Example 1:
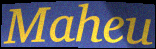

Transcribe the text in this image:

Maheu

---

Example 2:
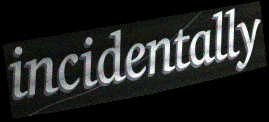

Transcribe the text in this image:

incidentally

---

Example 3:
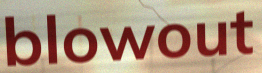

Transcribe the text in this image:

blowout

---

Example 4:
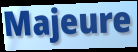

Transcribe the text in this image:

Majeure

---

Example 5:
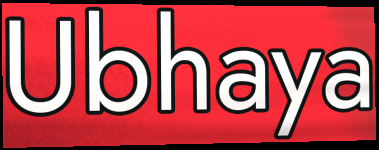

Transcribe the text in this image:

Ubhaya